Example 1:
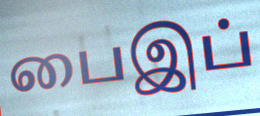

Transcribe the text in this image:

பைஇப்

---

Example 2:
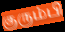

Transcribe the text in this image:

குரும்பி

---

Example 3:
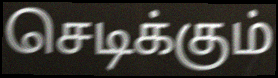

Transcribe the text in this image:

செடிக்கும்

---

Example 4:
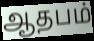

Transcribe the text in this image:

ஆதபம்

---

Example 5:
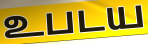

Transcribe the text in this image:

உபடய